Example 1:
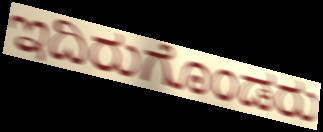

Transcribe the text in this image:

ಇದಿರುಗೊಂಡರು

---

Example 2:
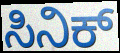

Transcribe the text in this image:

ಸಿನಿಕ್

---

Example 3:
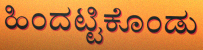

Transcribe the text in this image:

ಹಿಂದಟ್ಟಿಕೊಂಡು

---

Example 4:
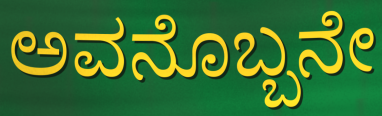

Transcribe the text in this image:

ಅವನೊಬ್ಬನೇ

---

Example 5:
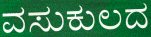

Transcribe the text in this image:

ವಸುಕುಲದ